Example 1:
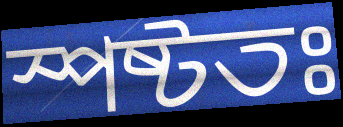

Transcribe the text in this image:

স্পষ্টতঃ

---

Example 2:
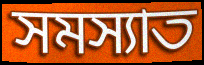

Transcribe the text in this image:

সমস্যাত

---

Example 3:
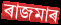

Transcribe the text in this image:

ৰাজমাৰ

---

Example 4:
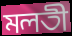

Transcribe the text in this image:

মলতী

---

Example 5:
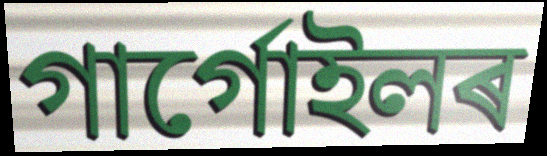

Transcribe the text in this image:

গাৰ্গোইলৰ